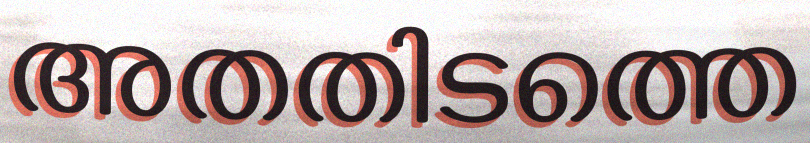
അതതിടത്തെ